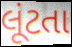
લૂંટતા